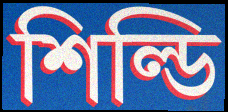
শিল্ডি